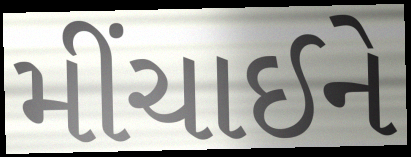
મીંચાઈને